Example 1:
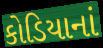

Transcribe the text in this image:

કોડિયાનાં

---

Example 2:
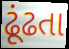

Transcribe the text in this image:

ઢૂંઢતા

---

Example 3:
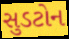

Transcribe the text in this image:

સુડટોન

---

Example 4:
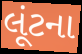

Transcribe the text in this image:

લૂંટના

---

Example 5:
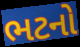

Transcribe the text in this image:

ભટનો